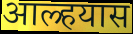
आल्हयास